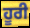
ਹੂਰੀ